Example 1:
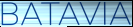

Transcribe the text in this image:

BATAVIA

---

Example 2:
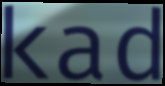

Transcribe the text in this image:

kad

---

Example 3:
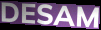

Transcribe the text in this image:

DESAM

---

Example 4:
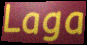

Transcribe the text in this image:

Laga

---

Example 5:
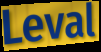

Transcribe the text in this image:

Leval